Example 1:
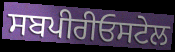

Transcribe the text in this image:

ਸਬਪੀਰੀਓਸਟੇਲ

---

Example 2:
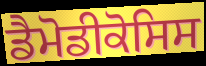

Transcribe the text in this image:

ਡੈਮੋਡੀਕੋਸਿਸ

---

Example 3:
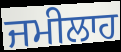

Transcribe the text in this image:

ਜਮੀਲਾਹ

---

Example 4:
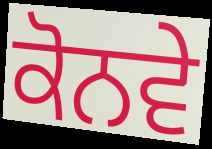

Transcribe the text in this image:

ਕੋਨਵੇ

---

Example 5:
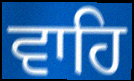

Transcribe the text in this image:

ਵਾਹਿ